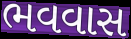
ભવવાસ